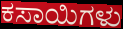
ಕಸಾಯಿಗಳು